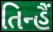
તિન્હૈં